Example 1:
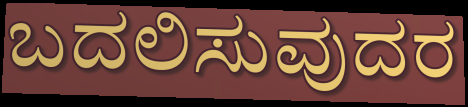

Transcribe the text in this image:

ಬದಲಿಸುವುದರ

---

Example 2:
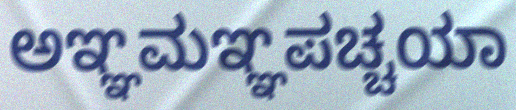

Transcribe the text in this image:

ಅಞ್ಞಮಞ್ಞಪಚ್ಚಯಾ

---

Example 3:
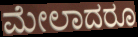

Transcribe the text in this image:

ಮೇಲಾದರೂ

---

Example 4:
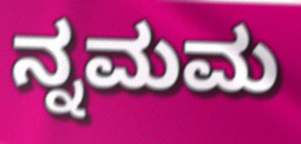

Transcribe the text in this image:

ನ್ನಮಮ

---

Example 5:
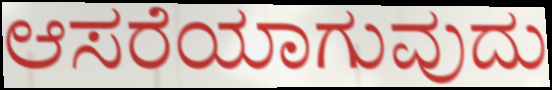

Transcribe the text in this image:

ಆಸರೆಯಾಗುವುದು